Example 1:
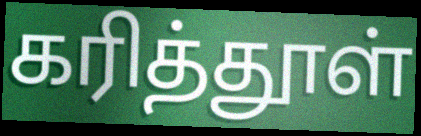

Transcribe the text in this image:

கரித்தூள்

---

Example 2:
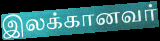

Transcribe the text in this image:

இலக்கானவர்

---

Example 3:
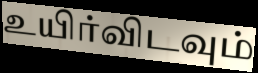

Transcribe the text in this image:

உயிர்விடவும்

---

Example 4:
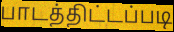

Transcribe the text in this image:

பாடத்திட்டப்படி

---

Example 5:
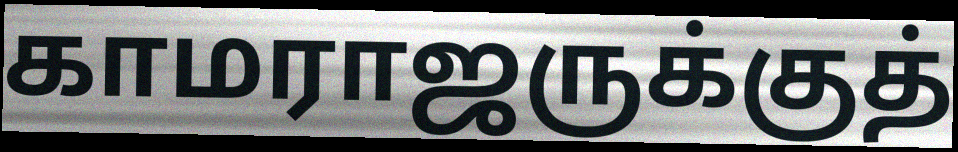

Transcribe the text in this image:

காமராஜருக்குத்